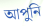
আপুনি